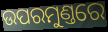
ଉପରମୁଣ୍ତରେ